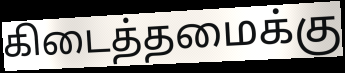
கிடைத்தமைக்கு